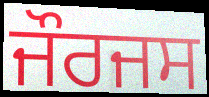
ਜੌਰਜਸ